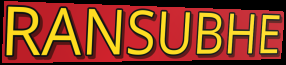
RANSUBHE